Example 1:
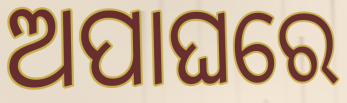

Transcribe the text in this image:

ଅପାଘରେ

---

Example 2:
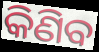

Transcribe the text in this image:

କିଣିବ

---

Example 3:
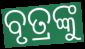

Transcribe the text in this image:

ବୃତ୍ରଙ୍କୁ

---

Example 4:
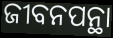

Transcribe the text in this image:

ଜୀବନପନ୍ଥା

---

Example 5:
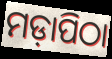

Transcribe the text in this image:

ମଡ଼ାପିଠା